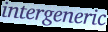
intergeneric